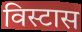
विस्टास